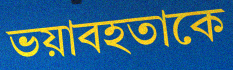
ভয়াবহতাকে